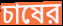
চাষের